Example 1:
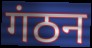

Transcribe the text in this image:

गंठन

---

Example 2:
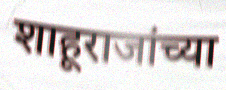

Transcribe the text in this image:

शाहूराजांच्या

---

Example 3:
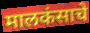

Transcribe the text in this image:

मालकंसाचे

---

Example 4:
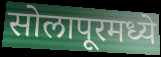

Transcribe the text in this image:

सोलापूरमध्ये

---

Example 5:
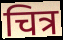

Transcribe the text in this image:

चित्र